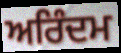
ਅਰਿੰਦਮ